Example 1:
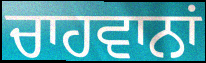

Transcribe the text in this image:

ਚਾਹਵਾਨਾਂ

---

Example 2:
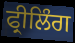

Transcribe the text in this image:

ਫ੍ਰੀਲਿੰਗ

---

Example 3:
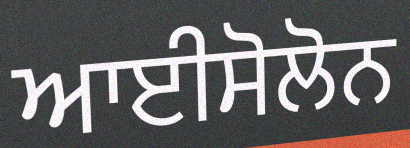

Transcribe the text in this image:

ਆਈਸੋਲੋਨ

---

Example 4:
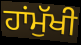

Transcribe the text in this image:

ਹਾਂਮੁੱਖੀ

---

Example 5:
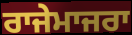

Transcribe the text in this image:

ਰਾਜੇਮਾਜਰਾ